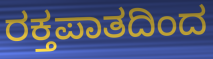
ರಕ್ತಪಾತದಿಂದ